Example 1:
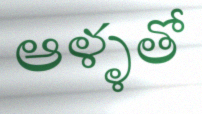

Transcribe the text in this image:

ఆళ్ళతో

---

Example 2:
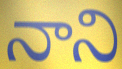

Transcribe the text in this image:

నాని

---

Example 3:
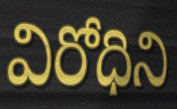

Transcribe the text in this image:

విరోధిని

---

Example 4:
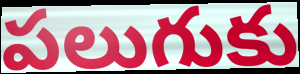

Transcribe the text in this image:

పలుగుకు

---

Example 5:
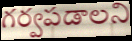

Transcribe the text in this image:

గర్వపడాలని